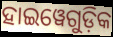
ହାଇୱେଗୁଡ଼ିକ